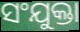
ସଂଯୁକ୍ତା